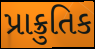
પ્રાક્રુતિક